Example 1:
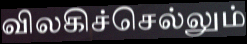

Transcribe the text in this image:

விலகிச்செல்லும்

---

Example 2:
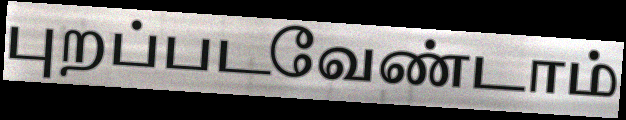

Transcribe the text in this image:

புறப்படவேண்டாம்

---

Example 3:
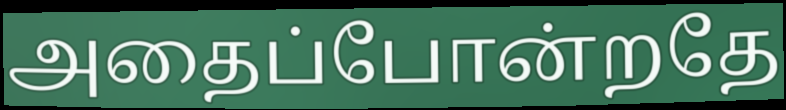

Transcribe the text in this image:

அதைப்போன்றதே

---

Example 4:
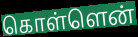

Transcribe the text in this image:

கொள்ளென்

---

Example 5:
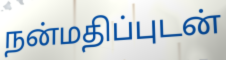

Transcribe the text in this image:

நன்மதிப்புடன்